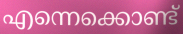
എന്നെക്കൊണ്ട്